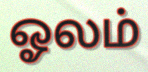
ஓலம்